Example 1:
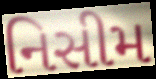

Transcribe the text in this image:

નિસીમ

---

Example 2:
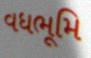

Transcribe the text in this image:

વધભૂમિ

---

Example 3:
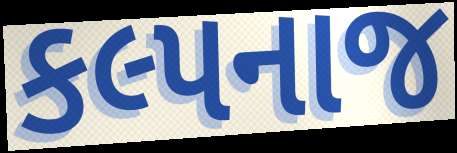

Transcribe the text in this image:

કલ્પનાજ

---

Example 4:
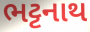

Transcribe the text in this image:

ભટ્ટનાથ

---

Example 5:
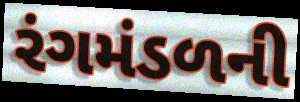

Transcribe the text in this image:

રંગમંડળની